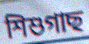
শিশুগাছ